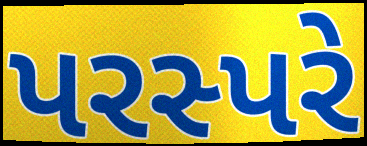
પરસ્પરે